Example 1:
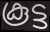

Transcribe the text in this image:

കൂട്ട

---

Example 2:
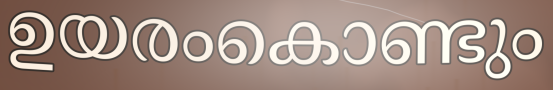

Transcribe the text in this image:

ഉയരംകൊണ്ടും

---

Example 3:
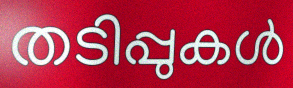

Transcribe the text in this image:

തടിപ്പുകൾ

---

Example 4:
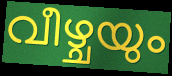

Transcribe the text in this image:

വീഴ്ചയും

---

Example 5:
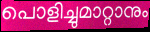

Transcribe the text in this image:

പൊളിച്ചുമാറ്റാനും